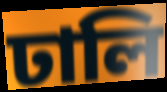
ঢালি